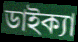
ডাইক্যা